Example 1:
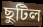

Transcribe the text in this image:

ছুটিল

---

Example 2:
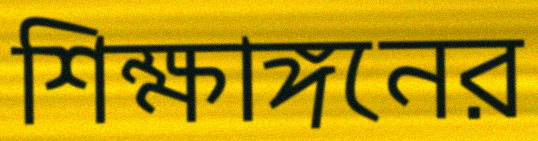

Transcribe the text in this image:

শিক্ষাঙ্গনের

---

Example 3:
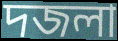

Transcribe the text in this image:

দজলা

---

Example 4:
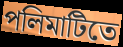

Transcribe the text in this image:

পলিমাটিতে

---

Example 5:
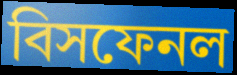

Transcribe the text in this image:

বিসফেনল